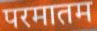
परमातम